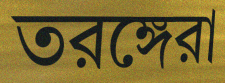
তরঙ্গেরা